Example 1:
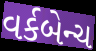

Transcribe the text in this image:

વર્કબેન્ચ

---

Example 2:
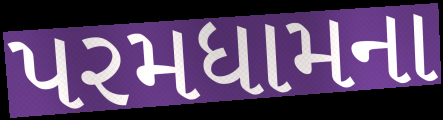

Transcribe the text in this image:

પરમધામના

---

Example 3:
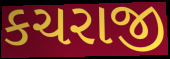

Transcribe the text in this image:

કચરાજી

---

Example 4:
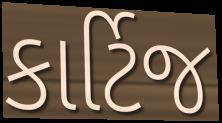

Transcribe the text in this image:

કાર્ટિજ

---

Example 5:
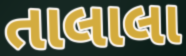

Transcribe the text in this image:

તાલાલા